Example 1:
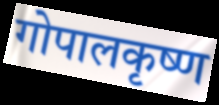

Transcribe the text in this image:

गोपालकृष्‍ण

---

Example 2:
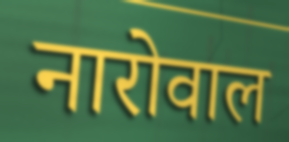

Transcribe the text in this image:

नारोवाल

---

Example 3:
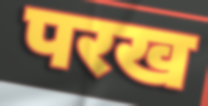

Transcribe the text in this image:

परख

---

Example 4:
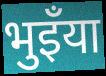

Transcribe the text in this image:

भुइँया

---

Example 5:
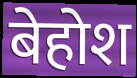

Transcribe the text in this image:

बेहोश